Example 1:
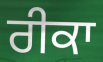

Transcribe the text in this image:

ਰੀਕਾ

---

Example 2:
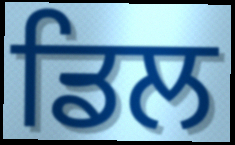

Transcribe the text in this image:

ਡਿਲ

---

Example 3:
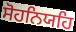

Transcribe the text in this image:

ਸੋਹਨਿਯਹਿ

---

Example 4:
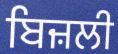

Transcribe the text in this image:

ਬਿਜ਼ਲੀ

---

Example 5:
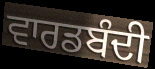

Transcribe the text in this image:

ਵਾਰਡਬੰਦੀ